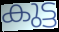
കുട്ട